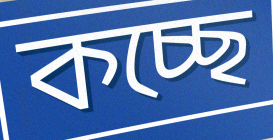
কচ্ছে